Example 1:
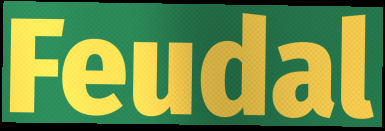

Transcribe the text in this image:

Feudal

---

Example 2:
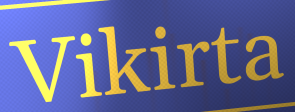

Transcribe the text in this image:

Vikirta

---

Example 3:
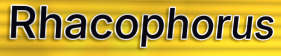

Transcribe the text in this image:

Rhacophorus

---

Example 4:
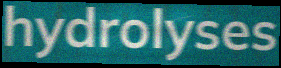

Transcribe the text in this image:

hydrolyses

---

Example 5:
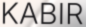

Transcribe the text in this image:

KABIR